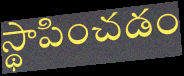
స్థాపించడం